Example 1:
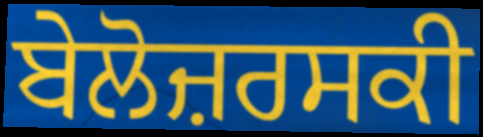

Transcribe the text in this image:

ਬੇਲੋਜ਼ਰਸਕੀ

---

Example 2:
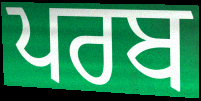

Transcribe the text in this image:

ਪਰਬ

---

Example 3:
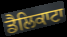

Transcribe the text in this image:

ਡੈਲਿਕਾਟਾ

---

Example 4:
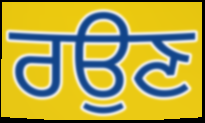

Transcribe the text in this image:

ਰਉਣ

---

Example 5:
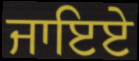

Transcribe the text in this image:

ਜਾਇਏ